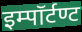
इम्पॉर्टण्ट